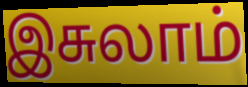
இசுலாம்